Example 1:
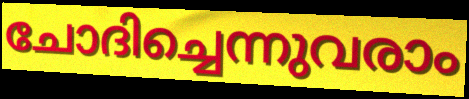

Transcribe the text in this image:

ചോദിച്ചെന്നുവരാം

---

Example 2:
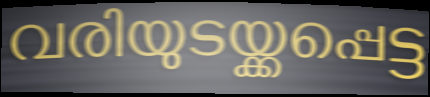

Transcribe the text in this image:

വരിയുടയ്ക്കപ്പെട്ട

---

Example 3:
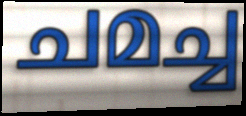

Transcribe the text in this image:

ചമച്ച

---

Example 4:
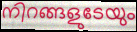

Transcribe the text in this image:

നിറങ്ങളുടേയും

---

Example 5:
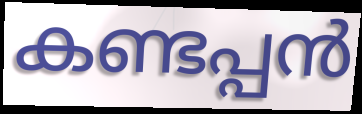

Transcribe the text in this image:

കണ്ടപ്പൻ